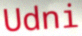
Udni